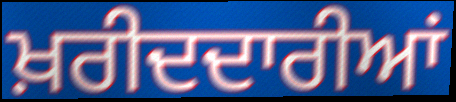
ਖ਼ਰੀਦਦਾਰੀਆਂ